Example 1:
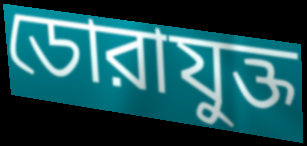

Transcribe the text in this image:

ডোরাযুক্ত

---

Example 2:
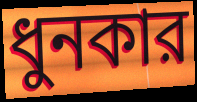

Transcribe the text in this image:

ধুনকার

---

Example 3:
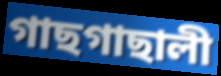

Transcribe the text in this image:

গাছগাছালী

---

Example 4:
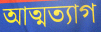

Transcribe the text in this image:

আত্মত্যাগ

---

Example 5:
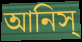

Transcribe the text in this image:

আনিস্